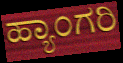
ಹ್ಯಾಂಗರಿ